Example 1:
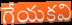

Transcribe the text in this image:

గేయకవి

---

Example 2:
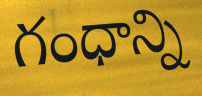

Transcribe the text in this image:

గంధాన్ని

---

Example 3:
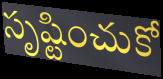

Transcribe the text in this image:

సృష్టించుకో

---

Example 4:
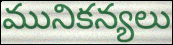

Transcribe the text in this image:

మునికన్యలు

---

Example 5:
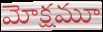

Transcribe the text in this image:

మోక్షమూ